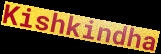
Kishkindha